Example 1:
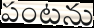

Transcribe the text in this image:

పంటను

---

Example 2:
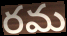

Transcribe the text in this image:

రమ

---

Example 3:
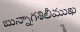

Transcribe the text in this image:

బున్నాగశిలీముఖ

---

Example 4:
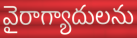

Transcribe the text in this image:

వైరాగ్యాదులను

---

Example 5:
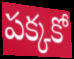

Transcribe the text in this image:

పక్కకో